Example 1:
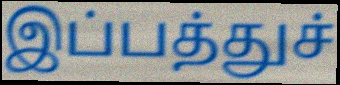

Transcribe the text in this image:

இப்பத்துச்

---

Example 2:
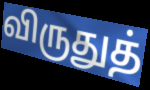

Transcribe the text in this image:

விருதுத்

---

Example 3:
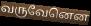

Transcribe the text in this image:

வருவேனென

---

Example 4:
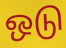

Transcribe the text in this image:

ஒடு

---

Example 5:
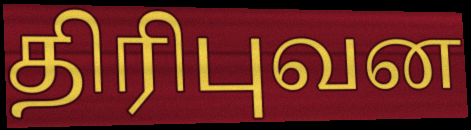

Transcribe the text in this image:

திரிபுவன